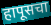
हापूसचा